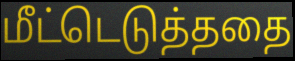
மீட்டெடுத்ததை